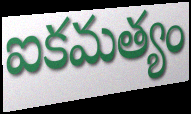
ఐకమత్యం